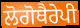
ਲੋਗੋਥੈਰੇਪੀ